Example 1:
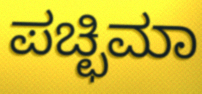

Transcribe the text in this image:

ಪಚ್ಛಿಮಾ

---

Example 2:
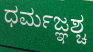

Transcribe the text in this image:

ಧರ್ಮಜ್ಞಶ್ಚ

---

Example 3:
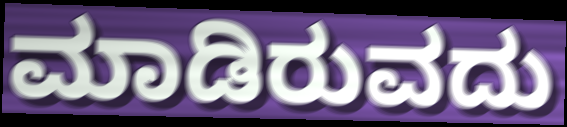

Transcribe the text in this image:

ಮಾಡಿರುವದು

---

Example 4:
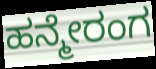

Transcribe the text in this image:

ಹನ್ಮೇರಂಗ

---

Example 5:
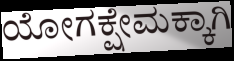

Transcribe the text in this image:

ಯೋಗಕ್ಷೇಮಕ್ಕಾಗಿ